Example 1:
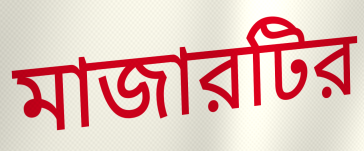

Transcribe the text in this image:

মাজারটির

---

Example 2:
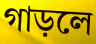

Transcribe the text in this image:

গাড়লে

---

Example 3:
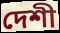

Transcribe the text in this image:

দেশী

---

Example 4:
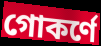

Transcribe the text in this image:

গোকর্ণে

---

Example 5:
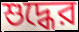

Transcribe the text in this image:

শুদ্ধের